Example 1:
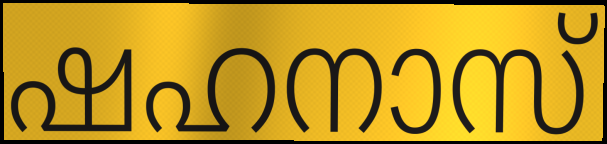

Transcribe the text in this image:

ഷഹനാസ്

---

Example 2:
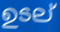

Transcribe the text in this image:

ഉടല്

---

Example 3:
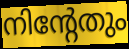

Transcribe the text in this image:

നിന്റേതും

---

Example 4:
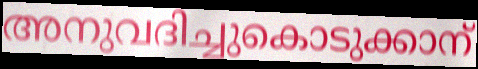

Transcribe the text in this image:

അനുവദിച്ചുകൊടുക്കാന്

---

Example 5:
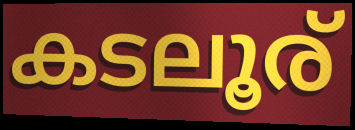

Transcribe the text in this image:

കടലൂര്